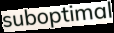
suboptimal